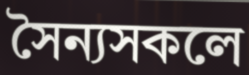
সৈন্যসকলে